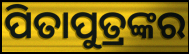
ପିତାପୁତ୍ରଙ୍କର